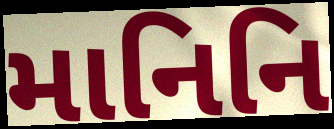
માનિનિ